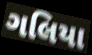
ગલિયા